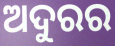
ଅଦୁରର